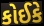
કોઈકે